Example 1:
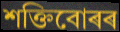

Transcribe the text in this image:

শক্তিবোৰৰ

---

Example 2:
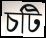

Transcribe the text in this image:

চটি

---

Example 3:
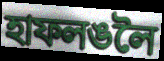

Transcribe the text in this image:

হাফলঙলৈ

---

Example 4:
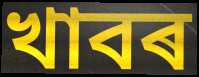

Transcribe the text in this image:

খাবৰ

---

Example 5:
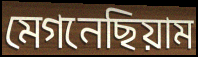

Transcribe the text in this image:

মেগনেছিয়াম